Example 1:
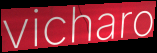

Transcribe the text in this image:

vicharo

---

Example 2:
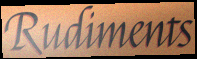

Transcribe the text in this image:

Rudiments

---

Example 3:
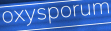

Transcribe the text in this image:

oxysporum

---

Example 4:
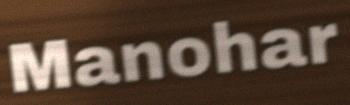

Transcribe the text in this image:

Manohar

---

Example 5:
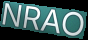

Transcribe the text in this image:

NRAO